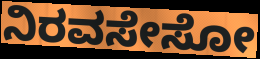
ನಿರವಸೇಸೋ